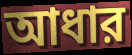
আধার